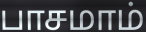
பாசமாம்